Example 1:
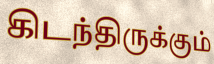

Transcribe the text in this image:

கிடந்திருக்கும்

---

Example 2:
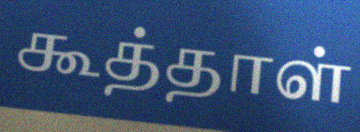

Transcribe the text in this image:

கூத்தாள்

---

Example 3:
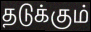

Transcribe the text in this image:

தடுக்கும்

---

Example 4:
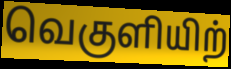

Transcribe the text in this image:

வெகுளியிற்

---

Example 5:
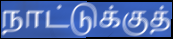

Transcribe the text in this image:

நாட்டுக்குத்